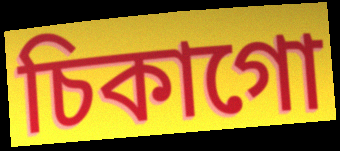
চিকাগো